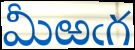
మీఱఁగ